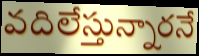
వదిలేస్తున్నారనే